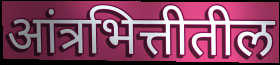
आंत्रभित्तीतील